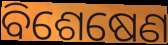
ବିଶେଷେଣ